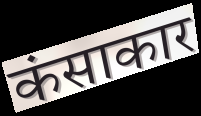
कंसाकार